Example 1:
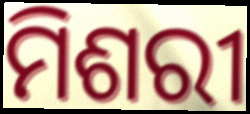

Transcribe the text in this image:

ମିଶରୀ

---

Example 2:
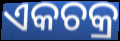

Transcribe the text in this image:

ଏକଚକ୍ର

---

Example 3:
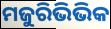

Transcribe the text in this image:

ମଜୁରିଭିଭିକ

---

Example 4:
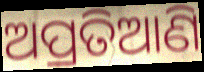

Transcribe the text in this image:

ଅପ୍ରତିଆଣି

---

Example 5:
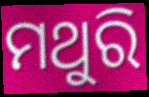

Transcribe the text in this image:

ମଥୁରି